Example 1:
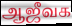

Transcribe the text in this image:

ஆஜீவக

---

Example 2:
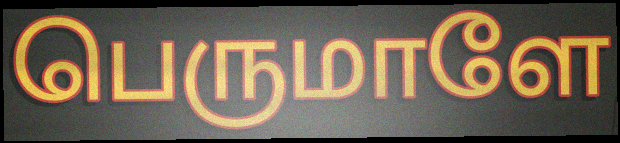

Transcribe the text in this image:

பெருமாளே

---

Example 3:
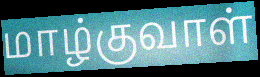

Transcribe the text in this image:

மாழ்குவாள்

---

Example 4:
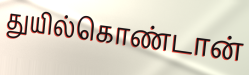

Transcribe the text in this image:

துயில்கொண்டான்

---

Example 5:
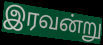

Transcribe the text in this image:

இரவன்று